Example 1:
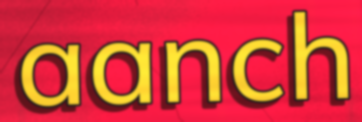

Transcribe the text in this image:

aanch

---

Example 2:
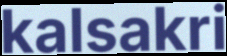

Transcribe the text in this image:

kalsakri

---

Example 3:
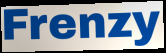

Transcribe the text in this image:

Frenzy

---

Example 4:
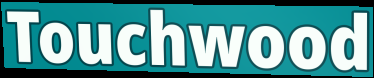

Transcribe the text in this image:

Touchwood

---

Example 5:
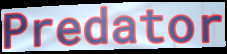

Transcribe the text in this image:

Predator